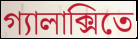
গ্যালাক্সিতে